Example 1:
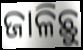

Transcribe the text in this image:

ଜାଳିଛୁ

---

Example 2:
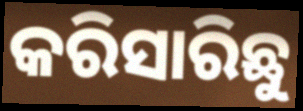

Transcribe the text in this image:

କରିସାରିଛୁ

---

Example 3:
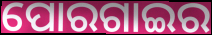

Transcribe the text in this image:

ପୋରଗାଇର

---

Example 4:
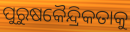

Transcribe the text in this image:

ପୁରୁଷକୈନ୍ଦ୍ରିକତାକୁ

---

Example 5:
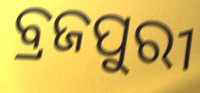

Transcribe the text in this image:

ବ୍ରଜପୁରୀ